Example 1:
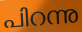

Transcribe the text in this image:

പിറന്നു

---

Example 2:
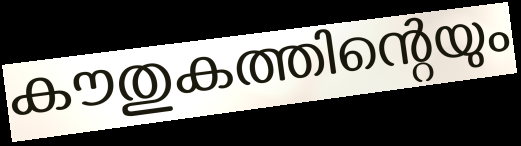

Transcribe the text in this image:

കൗതുകത്തിന്റെയും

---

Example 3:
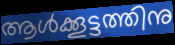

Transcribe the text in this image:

ആൾക്കൂട്ടത്തിനു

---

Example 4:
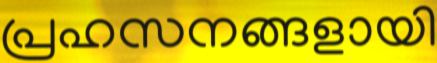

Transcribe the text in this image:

പ്രഹസനങ്ങളായി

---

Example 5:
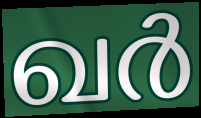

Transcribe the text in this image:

ഖർ